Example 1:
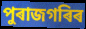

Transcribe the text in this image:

পুৰাজগৰিৰ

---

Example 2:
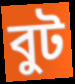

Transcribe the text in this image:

বুট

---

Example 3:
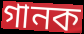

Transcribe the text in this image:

গানক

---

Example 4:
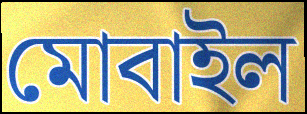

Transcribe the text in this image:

মোবাইল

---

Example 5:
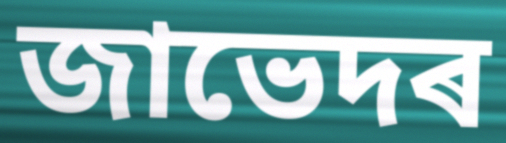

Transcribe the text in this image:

জাভেদৰ